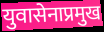
युवासेनाप्रमुख